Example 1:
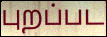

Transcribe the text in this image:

புறப்பட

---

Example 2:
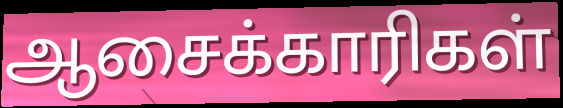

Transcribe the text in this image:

ஆசைக்காரிகள்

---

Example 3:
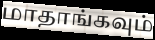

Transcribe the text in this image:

மாதாங்கவும்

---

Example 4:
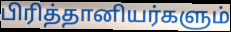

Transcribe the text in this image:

பிரித்தானியர்களும்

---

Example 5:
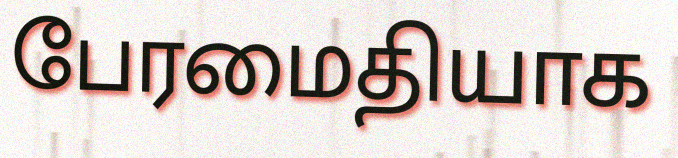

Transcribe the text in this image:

பேரமைதியாக